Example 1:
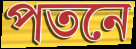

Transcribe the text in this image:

পতনে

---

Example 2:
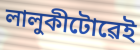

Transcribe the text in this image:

লালুকীটোৱেই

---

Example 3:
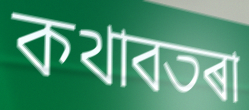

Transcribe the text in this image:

কথাবতৰা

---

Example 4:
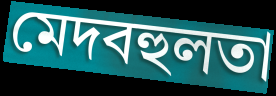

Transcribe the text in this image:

মেদবহুলতা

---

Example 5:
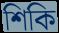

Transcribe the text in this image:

শিকি